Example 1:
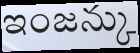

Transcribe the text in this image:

ఇంజన్కు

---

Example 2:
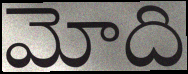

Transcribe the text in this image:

మోది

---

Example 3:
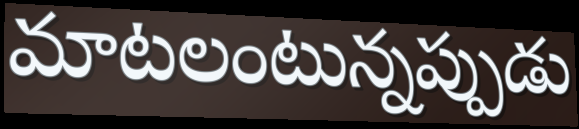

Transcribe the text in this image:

మాటలంటున్నప్పుడు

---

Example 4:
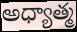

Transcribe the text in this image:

అధ్యాత్మ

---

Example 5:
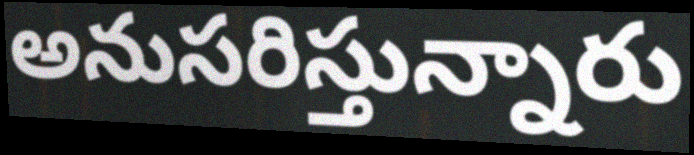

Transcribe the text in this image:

అనుసరిస్తున్నారు